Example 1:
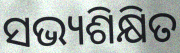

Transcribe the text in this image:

ସଭ୍ୟଶିକ୍ଷିତ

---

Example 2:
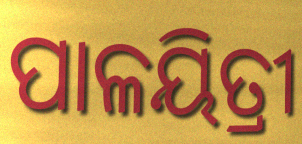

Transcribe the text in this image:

ପାଳୟିତ୍ରୀ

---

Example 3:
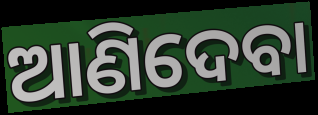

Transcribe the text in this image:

ଆଣିଦେବା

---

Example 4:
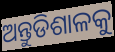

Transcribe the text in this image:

ଅନ୍ତୁଡିଶାଳକୁ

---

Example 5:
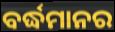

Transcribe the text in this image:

ବର୍ଦ୍ଧମାନର